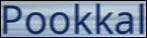
Pookkal